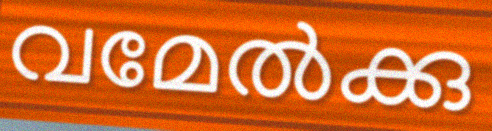
വമേൽക്കു